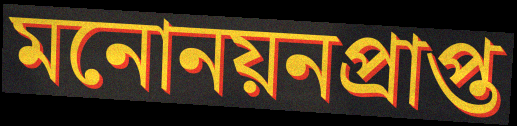
মনোনয়নপ্রাপ্ত